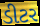
ડીટર